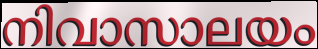
നിവാസാലയം